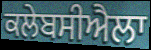
ਕਲੇਬਸੀਐਲਾ